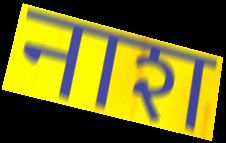
नाश